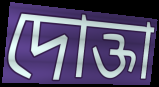
দোক্তা